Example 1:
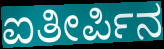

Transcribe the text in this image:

ಐತೀರ್ಪಿನ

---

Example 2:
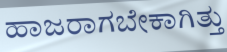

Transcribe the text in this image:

ಹಾಜರಾಗಬೇಕಾಗಿತ್ತು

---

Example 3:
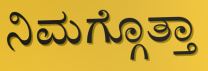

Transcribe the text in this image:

ನಿಮಗ್ಗೊತ್ತಾ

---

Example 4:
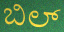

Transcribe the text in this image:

ಬಿಲ್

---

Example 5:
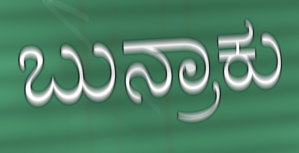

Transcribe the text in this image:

ಬುನ್ರಾಕು